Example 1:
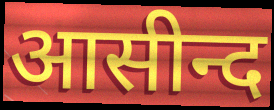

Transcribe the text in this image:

आसीन्द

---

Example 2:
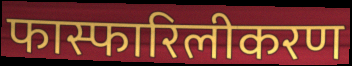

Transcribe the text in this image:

फास्फारिलीकरण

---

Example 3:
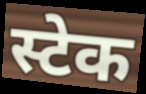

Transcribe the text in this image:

स्टेक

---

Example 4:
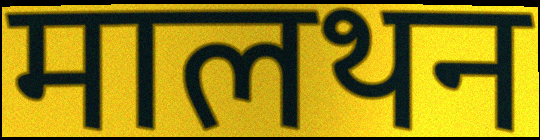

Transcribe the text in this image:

मालथन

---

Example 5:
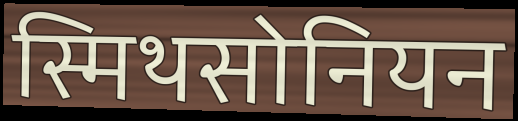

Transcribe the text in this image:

स्मिथसोनियन